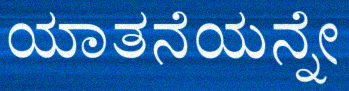
ಯಾತನೆಯನ್ನೇ